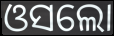
ଓସଲୋ